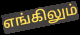
எங்கிலும்